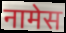
नामेस